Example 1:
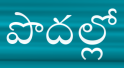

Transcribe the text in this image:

పొదల్లో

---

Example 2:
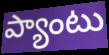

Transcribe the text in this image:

ప్యాంటు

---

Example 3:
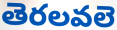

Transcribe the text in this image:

తెరలవలె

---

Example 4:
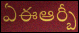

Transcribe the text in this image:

ఏఈఆర్బీ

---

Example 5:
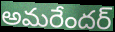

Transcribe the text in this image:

అమరేందర్